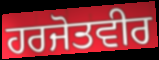
ਹਰਜੋਤਵੀਰ